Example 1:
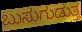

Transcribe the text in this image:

ಬುಸುಗುಡುತ್ತ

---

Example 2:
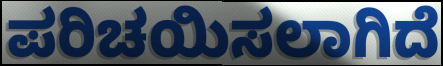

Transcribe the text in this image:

ಪರಿಚಯಿಸಲಾಗಿದೆ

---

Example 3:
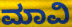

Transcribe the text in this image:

ಮಾವಿ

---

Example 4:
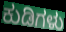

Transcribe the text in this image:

ಕುಡಿಗಳು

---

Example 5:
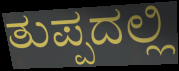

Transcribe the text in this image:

ತುಪ್ಪದಲ್ಲಿ